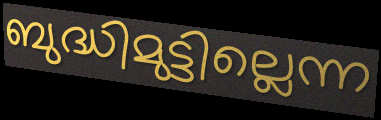
ബുദ്ധിമുട്ടില്ലെന്ന